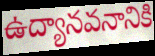
ఉద్యానవనానికి